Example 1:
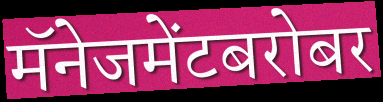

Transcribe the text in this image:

मॅनेजमेंटबरोबर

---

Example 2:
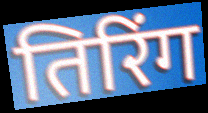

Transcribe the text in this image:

तिरिंग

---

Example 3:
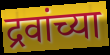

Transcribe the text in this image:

द्रवांच्या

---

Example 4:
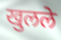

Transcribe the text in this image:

खुलले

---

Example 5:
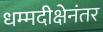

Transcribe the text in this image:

धम्मदीक्षेनंतर